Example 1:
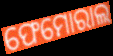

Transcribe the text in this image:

ଫେମୋରାଲ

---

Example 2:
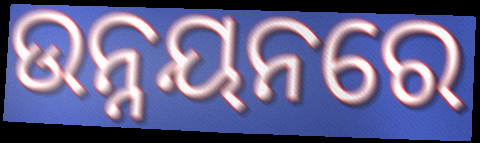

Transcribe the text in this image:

ଉନ୍ନୟନରେ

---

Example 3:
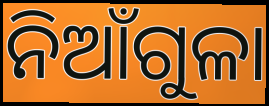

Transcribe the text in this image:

ନିଆଁଗୁଳା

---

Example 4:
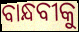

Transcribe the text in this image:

ବାନ୍ଧବୀକୁ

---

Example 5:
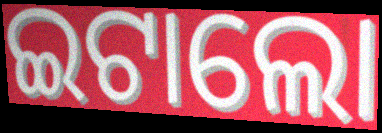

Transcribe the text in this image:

ଇଟାଲୋ